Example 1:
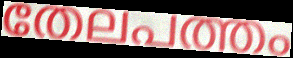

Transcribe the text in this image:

തേലപത്തം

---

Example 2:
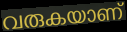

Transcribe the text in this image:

വരുകയാണ്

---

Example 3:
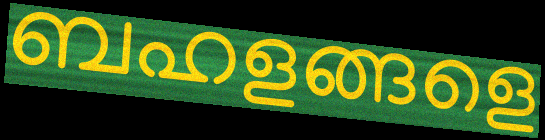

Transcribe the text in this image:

ബഹളങ്ങളെ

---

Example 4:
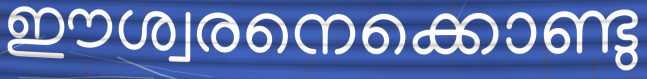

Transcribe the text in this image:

ഈശ്വരനെക്കൊണ്ടു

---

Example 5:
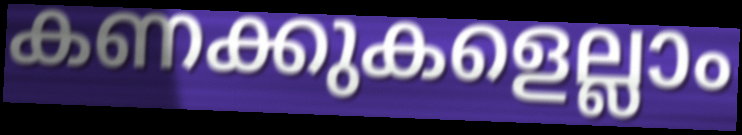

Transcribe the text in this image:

കണക്കുകളെല്ലാം